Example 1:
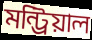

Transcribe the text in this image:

মন্ট্রিয়াল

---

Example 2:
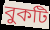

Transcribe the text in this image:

বুকটি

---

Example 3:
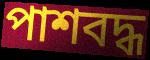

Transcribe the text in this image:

পাশবদ্ধ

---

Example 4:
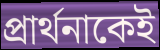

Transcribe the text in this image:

প্রার্থনাকেই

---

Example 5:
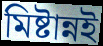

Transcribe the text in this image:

মিষ্টান্নই